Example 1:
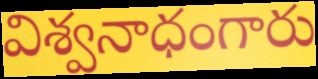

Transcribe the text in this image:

విశ్వనాధంగారు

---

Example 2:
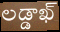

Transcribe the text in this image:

లడ్డాఖ్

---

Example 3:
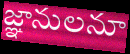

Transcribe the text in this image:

జ్ఞానులనూ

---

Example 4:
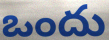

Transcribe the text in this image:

ఒందు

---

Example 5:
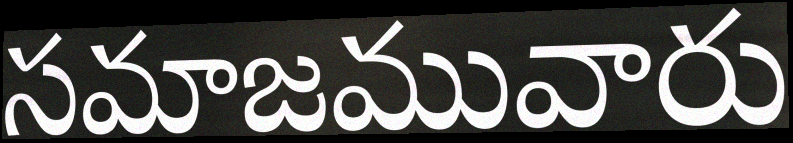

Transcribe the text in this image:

సమాజమువారు